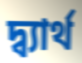
দ্ব্যার্থ